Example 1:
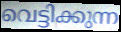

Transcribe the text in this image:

വെട്ടിക്കുന്ന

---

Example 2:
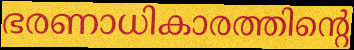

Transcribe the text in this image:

ഭരണാധികാരത്തിന്റെ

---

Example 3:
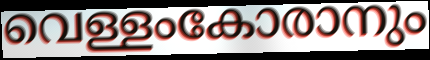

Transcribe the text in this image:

വെള്ളംകോരാനും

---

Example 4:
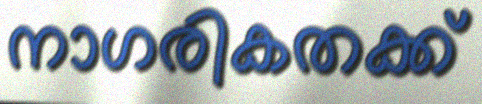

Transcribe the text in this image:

നാഗരികതക്ക്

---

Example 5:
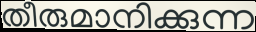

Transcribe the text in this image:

തീരുമാനിക്കുന്ന